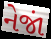
નેજાં